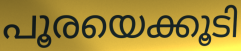
പൂരയെക്കൂടി